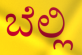
ಬೆಲ್ಲಿ